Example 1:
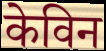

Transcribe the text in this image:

केविन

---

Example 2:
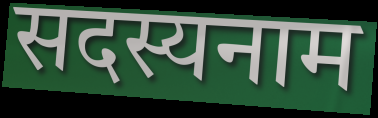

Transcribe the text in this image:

सदस्यनाम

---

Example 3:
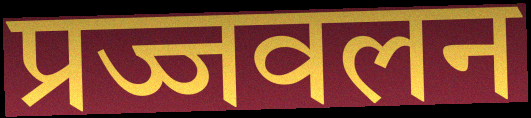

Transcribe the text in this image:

प्रज्‍जवलन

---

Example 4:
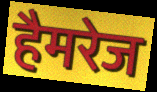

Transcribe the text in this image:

हैमरेज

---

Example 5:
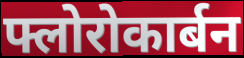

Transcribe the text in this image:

फ्लोरोकार्बन